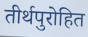
तीर्थपुरोहित